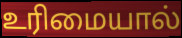
உரிமையால்